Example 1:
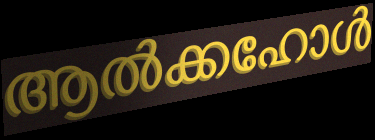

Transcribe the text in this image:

ആൽക്കഹോൾ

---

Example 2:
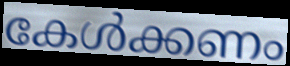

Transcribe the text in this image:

കേൾക്കണം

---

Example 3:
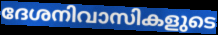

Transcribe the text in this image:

ദേശനിവാസികളുടെ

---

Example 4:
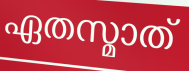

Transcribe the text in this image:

ഏതസ്മാത്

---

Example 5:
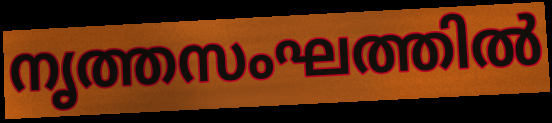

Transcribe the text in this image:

നൃത്തസംഘത്തിൽ